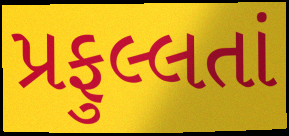
પ્રફુલ્લતાં